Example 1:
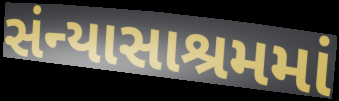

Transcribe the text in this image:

સંન્યાસાશ્રમમાં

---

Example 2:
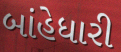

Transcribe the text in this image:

બાંહેધારી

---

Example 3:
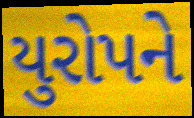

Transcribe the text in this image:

યુરોપને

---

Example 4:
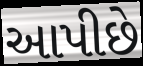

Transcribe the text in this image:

આપીછે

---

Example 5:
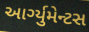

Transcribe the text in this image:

આર્ગ્યુમેન્ટસ